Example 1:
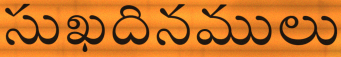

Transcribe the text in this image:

సుఖదినములు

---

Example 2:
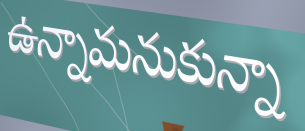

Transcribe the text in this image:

ఉన్నామనుకున్నా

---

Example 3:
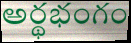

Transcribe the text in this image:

అర్థభంగం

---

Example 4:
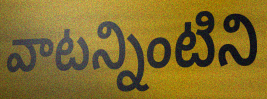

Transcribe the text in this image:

వాటన్నింటిని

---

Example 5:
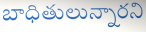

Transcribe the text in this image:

బాధితులున్నారని